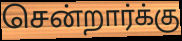
சென்றார்க்கு